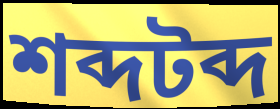
শব্দটব্দ